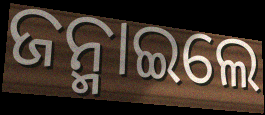
ଜନ୍ମାଇଲେ